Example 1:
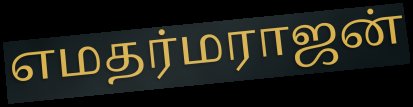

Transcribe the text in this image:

எமதர்மராஜன்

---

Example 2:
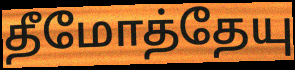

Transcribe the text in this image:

தீமோத்தேயு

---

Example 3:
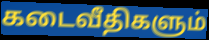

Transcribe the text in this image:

கடைவீதிகளும்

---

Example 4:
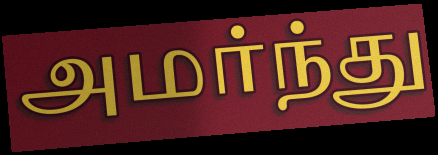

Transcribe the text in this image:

அமர்ந்து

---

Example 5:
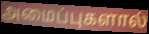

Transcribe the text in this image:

அமைப்புகளால்